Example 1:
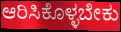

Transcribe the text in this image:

ಆರಿಸಿಕೊಳ್ಳಬೇಕು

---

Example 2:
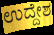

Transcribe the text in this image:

ಉದ್ದೇಶ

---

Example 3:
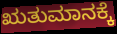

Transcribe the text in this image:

ಋತುಮಾನಕ್ಕೆ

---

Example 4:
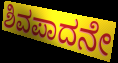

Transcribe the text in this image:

ಶಿವಪಾದನೇ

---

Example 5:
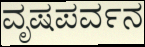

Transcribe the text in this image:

ವೃಷಪರ್ವನ